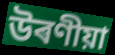
উৰণীয়া